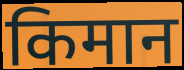
किमान